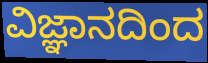
ವಿಜ್ಞಾನದಿಂದ